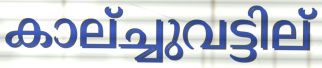
കാല്ച്ചുവട്ടില്